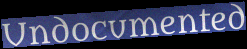
Undocumented